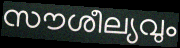
സൗശീല്യവും